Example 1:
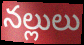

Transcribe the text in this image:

నల్లులు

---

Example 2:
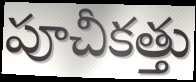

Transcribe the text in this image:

పూచీకత్తు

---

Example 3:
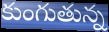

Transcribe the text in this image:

కుంగుతున్న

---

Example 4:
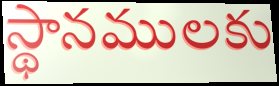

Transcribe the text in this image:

స్థానములకు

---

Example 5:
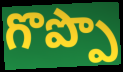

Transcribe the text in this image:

గొప్పొ